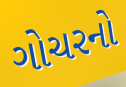
ગોચરનો